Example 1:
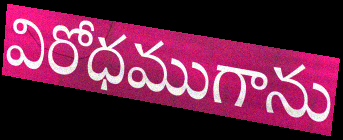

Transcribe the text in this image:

విరోధముగాను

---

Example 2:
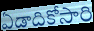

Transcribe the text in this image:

ఏడాదికోసారి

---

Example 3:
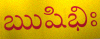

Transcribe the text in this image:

ఋషిభిః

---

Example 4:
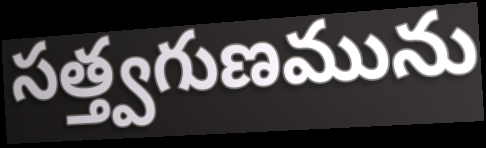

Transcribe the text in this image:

సత్త్వగుణమును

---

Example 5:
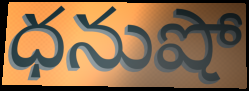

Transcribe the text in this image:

ధనుషో